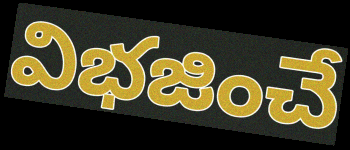
విభజించే